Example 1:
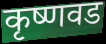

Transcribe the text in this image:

कृष्णवड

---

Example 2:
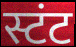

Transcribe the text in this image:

स्टंट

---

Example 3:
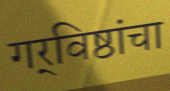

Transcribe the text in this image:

गर्विष्ठांचा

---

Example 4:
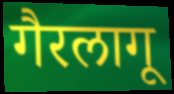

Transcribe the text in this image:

गैरलागू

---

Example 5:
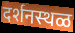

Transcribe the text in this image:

दर्शनस्थळ